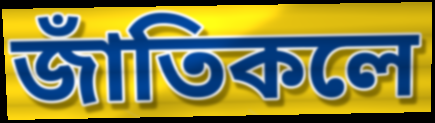
জাঁতিকলে